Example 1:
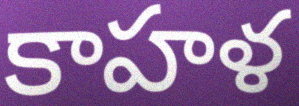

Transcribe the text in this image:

కాహళ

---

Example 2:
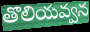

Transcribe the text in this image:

తొలియవ్వన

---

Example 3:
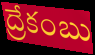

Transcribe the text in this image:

ద్రేకంబు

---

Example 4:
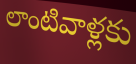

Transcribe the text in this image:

లాంటివాళ్లకు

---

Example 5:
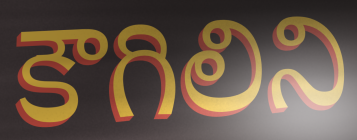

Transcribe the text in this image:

కౌగిలిని